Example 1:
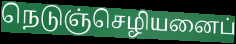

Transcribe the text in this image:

நெடுஞ்செழியனைப்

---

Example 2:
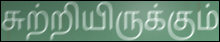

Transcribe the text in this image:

சுற்றியிருக்கும்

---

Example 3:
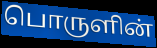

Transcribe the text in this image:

பொருளின்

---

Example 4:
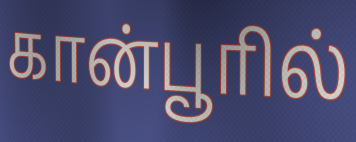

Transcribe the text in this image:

கான்பூரில்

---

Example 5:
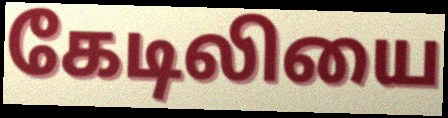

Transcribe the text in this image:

கேடிலியை